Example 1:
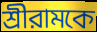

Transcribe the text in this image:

শ্রীরামকে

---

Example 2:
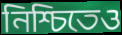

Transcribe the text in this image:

নিশ্চিতেও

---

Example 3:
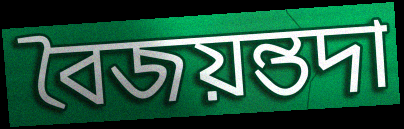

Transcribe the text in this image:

বৈজয়ন্তদা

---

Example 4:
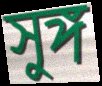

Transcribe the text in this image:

সুঙ্গ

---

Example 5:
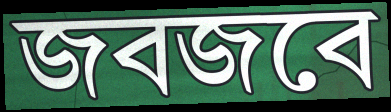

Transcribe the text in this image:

জবজবে